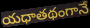
యధాతథంగానే